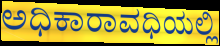
ಅಧಿಕಾರಾವಧಿಯಲ್ಲಿ